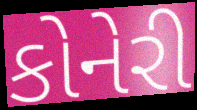
કોનેરી